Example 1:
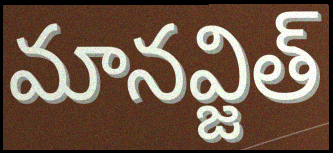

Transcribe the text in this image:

మానవ్జిత్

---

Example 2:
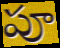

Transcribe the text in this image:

పూ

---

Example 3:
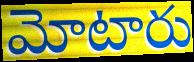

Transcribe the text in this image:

మోటారు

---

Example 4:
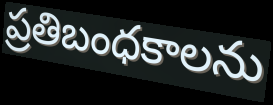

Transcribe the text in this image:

ప్రతిబంధకాలను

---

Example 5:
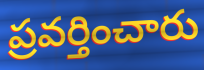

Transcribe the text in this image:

ప్రవర్తించారు